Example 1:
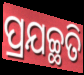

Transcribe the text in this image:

ପ୍ରଯଚ୍ଛତି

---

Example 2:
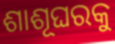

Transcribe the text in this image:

ଶାଶୂଘରକୁ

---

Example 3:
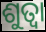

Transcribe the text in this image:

ଶୁତ୍ବା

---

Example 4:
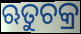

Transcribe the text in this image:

ଋତୁଚକ୍ର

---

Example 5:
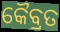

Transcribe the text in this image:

କୈବ୍ରତ